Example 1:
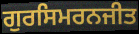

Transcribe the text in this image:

ਗੁਰਸਿਮਰਨਜੀਤ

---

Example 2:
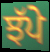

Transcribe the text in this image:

ਝੱਪੇ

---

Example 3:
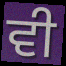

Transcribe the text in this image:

ਵੀ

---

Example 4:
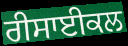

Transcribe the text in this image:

ਰੀਸਾਈਕਲ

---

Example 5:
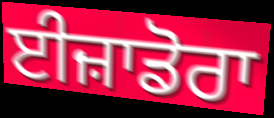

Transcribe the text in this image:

ਈਜ਼ਾਡੋਰਾ